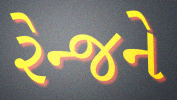
રેન્જને